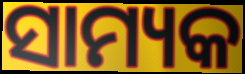
ସାମ୍ୟକ